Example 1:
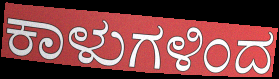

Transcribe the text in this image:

ಕಾಳುಗಳಿಂದ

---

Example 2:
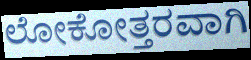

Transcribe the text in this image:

ಲೋಕೋತ್ತರವಾಗಿ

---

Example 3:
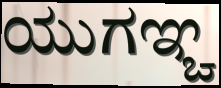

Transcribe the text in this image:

ಯುಗಞ್ಚ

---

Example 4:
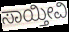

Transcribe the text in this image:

ಸಾಯ್ತೀವಿ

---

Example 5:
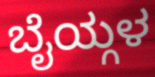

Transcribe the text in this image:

ಬೈಯ್ಗಳ